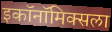
इकॉनॉमिक्सला